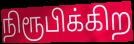
நிரூபிக்கிற